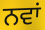
ਨਵਾਂ